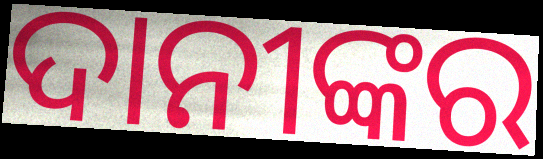
ଦାନୀଙ୍କର